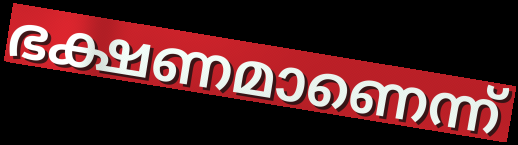
ഭക്ഷണമാണെന്ന്